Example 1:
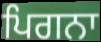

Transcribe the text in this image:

ਪਿਗਨਾ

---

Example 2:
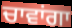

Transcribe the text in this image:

ਚਾਵਾਂਗਾ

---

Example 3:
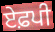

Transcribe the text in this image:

ਏਫ਼ਪੀ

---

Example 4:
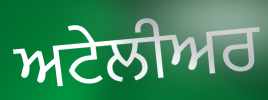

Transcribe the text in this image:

ਅਟੇਲੀਅਰ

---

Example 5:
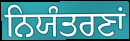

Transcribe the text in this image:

ਨਿਯੰਤਰਣਾਂ